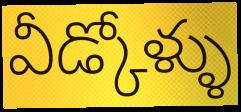
వీడ్కోళ్ళు